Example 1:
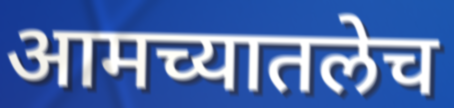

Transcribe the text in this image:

आमच्यातलेच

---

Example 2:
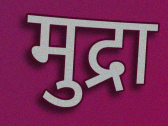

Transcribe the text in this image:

मुद्रा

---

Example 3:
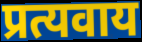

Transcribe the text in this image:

प्रत्यवाय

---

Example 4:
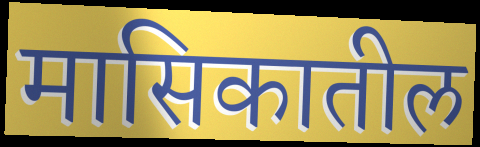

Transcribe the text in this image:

मासिकातील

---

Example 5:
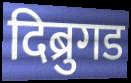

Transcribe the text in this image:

दिब्रुगड